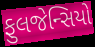
ફુલજેન્સિયો